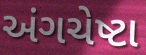
અંગચેષ્ટા